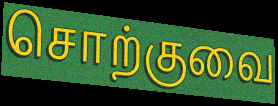
சொற்குவை